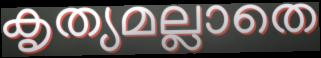
കൃത്യമല്ലാതെ